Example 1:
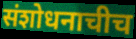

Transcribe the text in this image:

संशोधनाचीच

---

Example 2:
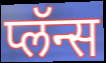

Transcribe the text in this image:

प्लॅन्स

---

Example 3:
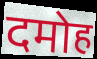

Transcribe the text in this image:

दमोह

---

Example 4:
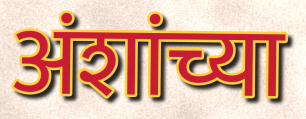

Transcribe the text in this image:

अंशांच्या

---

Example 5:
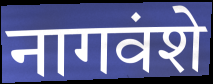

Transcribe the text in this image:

नागवंशे